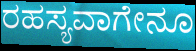
ರಹಸ್ಯವಾಗೇನೂ